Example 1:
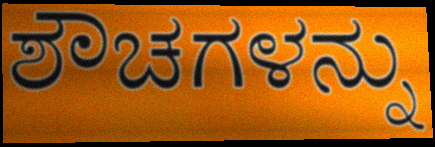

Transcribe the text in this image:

ಶೌಚಗಳನ್ನು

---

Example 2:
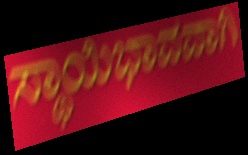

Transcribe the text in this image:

ಸ್ಥಾಯಿಭಾವವಾಗಿ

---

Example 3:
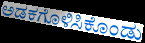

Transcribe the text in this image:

ಅಡಕಗೊಳಿಸಿಕೊಂಡು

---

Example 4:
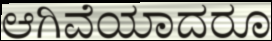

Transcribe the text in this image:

ಆಗಿವೆಯಾದರೂ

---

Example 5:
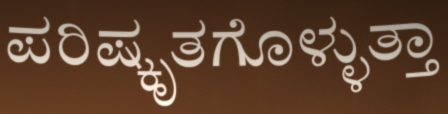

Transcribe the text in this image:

ಪರಿಷ್ಕೃತಗೊಳ್ಳುತ್ತಾ